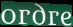
ordre